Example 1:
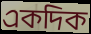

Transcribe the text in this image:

একদিক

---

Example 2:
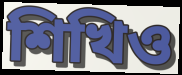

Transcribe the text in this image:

শিখিও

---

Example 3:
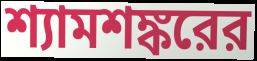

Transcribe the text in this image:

শ্যামশঙ্করের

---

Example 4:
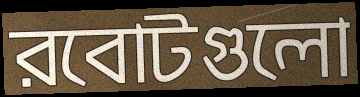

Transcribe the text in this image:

রবোটগুলো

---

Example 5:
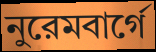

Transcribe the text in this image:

নুরেমবার্গে